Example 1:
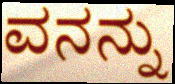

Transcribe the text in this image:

ವನನ್ನು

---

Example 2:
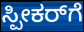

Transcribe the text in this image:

ಸ್ಪೀಕರ್‌ಗೆ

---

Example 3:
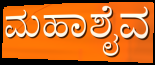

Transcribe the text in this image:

ಮಹಾಶೈವ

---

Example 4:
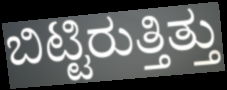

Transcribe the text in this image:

ಬಿಟ್ಟಿರುತ್ತಿತ್ತು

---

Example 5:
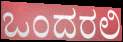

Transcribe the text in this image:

ಒಂದರಲಿ